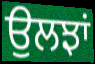
ਉਲਝਾਂ